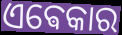
ଏଵେକାର